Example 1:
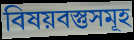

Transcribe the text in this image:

বিষয়বস্তুসমূহ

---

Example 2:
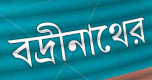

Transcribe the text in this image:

বদ্রীনাথের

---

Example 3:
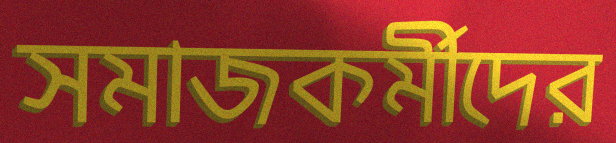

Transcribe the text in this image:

সমাজকর্মীদের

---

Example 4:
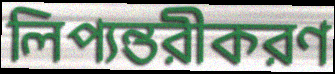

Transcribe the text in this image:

লিপ্যন্তরীকরণ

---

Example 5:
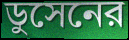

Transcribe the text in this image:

ডুসেনের